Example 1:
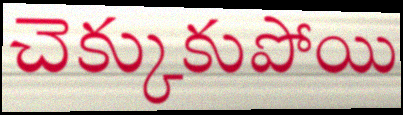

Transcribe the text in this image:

చెక్కుకుపోయి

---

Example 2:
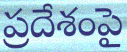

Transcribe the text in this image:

ప్రదేశంపై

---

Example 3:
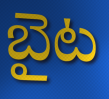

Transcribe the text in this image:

బైట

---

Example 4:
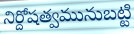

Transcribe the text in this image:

నిర్దోషత్వమునుబట్టి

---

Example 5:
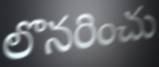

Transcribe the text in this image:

లొనరించు